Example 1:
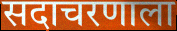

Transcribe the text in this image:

सदाचरणाला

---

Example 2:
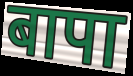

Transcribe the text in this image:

बापा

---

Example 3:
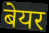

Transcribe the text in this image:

बेयर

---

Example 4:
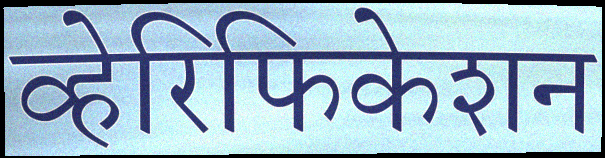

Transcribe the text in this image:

व्हेरिफिकेशन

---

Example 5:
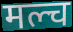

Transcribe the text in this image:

मल्च